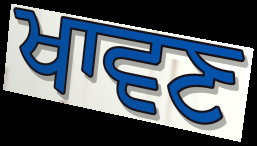
ਖਾਵਣ